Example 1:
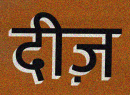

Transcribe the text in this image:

दीज़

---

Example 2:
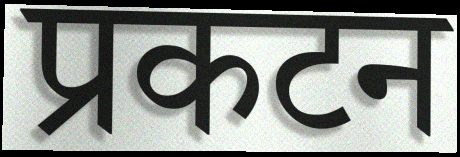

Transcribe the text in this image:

प्रकटन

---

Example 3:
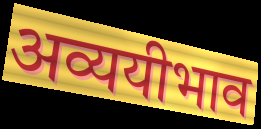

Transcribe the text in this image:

अव्ययीभाव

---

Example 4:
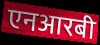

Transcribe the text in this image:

एनआरबी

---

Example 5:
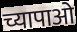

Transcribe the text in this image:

च्यापाओ